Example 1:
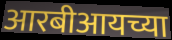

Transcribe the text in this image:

आरबीआयच्या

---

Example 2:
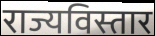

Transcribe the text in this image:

राज्यविस्तार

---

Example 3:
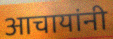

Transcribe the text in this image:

आचायांनी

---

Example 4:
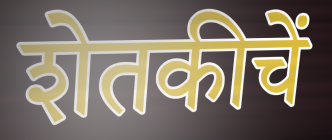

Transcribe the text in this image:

शेतकीचें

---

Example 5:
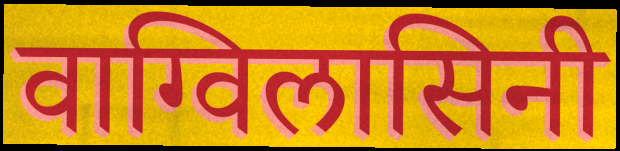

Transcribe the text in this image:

वाग्विलासिनी